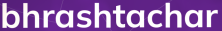
bhrashtachar